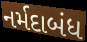
નર્મદાબંધ